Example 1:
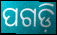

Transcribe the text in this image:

ପଗଡ଼ି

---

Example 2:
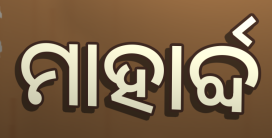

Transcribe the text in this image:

ମାହାର୍ବ୍ଦ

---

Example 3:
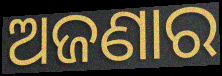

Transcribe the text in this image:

ଅଜଣାର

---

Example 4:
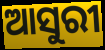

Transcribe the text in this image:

ଆସୁରୀ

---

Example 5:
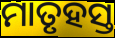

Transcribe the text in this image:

ମାତୃହସ୍ତ